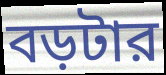
বড়টার